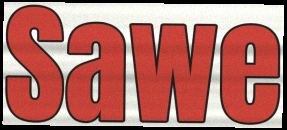
Sawe